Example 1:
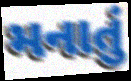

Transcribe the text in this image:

મનાતું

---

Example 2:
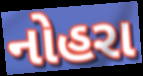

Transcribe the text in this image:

નોહરા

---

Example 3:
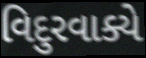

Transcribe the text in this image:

વિદુરવાક્યે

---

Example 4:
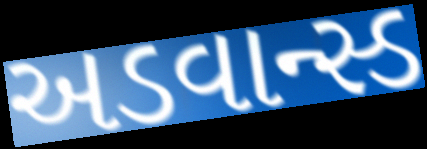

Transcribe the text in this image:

અડવાન્સ્ડ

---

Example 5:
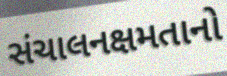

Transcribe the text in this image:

સંચાલનક્ષમતાનો